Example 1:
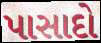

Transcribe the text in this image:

પાસાદો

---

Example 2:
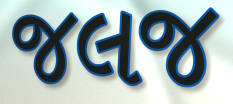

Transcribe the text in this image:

જલજ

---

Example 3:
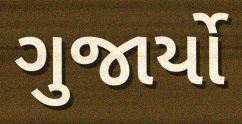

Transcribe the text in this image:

ગુજાર્યો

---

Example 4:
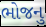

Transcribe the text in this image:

ભોજનુ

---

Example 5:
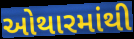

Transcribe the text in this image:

ઓથારમાંથી